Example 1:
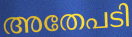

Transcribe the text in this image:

അതേപടി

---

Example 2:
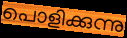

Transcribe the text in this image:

പൊളിക്കുന്നു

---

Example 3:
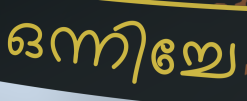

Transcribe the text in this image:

ഒന്നിച്ചേ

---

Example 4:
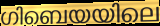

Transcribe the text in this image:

ഗിബെയയിലെ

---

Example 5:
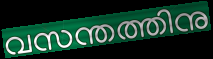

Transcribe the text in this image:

വസന്തത്തിനു